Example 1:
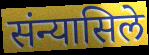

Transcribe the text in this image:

संन्यासिले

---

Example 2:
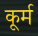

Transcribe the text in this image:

कूर्म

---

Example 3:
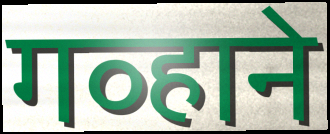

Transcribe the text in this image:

गव्हाने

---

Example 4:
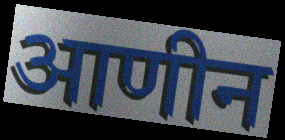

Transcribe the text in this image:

आणीन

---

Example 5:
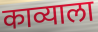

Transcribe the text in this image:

काव्याला